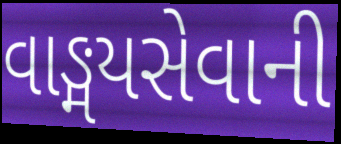
વાઙ્મયસેવાની